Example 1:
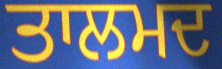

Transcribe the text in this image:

ਤਾਲਮਦ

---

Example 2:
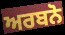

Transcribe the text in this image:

ਅਰਬਨੋ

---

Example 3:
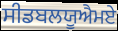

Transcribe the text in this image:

ਸੀਡਬਲਯੂਐਮਏ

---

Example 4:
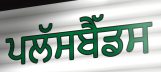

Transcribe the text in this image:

ਪਲੱਸਬੈੱਡਸ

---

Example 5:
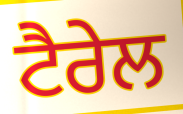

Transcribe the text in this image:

ਟੈਰੇਲ